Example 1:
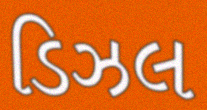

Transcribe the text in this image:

ડિઝલ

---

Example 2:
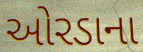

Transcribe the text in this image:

ઓરડાના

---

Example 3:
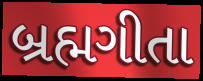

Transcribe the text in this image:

બ્રહ્મગીતા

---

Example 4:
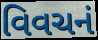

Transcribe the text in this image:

વિવચનં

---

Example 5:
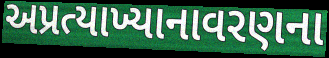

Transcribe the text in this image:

અપ્રત્યાખ્યાનાવરણના